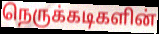
நெருக்கடிகளின்